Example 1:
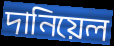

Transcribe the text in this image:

দানিয়েল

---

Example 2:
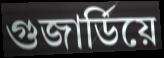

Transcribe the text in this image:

গুজাৰ্ডিয়ে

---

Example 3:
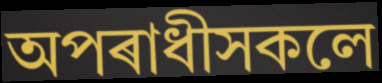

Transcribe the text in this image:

অপৰাধীসকলে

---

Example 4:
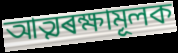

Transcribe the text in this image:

আত্মৰক্ষামূলক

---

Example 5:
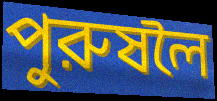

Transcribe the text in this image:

পুৰুষলৈ